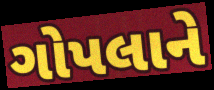
ગોપલાને